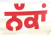
ਨੱਕਾਂ